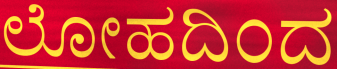
ಲೋಹದಿಂದ